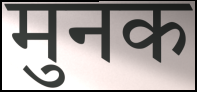
मुनक